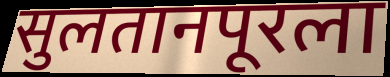
सुलतानपूरला